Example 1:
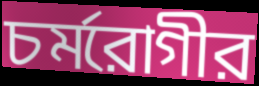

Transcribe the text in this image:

চর্মরোগীর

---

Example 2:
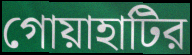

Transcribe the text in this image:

গোয়াহাটির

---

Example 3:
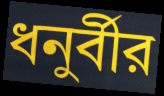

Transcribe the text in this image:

ধনুর্বীর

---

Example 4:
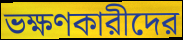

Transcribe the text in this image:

ভক্ষণকারীদের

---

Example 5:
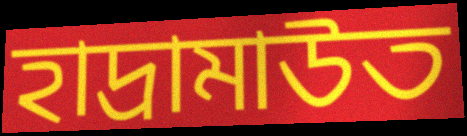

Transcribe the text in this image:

হাদ্রামাউত